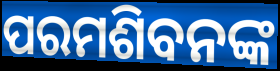
ପରମଶିବନଙ୍କ